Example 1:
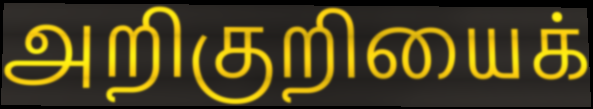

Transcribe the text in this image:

அறிகுறியைக்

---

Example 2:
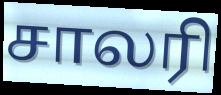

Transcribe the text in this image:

சாலரி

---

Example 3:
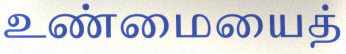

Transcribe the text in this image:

உண்மையைத்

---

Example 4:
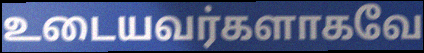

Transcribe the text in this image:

உடையவர்களாகவே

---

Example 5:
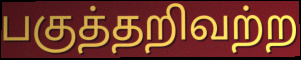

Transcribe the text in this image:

பகுத்தறிவற்ற